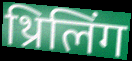
थ्रिलिंग